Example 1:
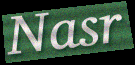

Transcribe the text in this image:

Nasr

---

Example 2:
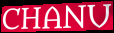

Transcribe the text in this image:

CHANU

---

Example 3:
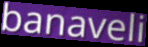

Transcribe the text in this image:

banaveli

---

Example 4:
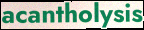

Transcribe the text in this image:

acantholysis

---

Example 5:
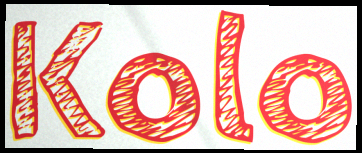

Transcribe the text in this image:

Kolo